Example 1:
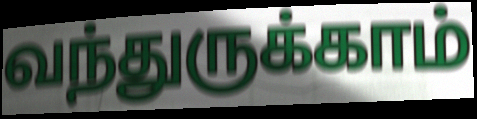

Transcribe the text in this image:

வந்துருக்காம்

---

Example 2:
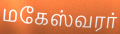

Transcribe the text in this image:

மகேஸ்வரர்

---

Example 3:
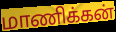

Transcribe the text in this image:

மாணிக்கன்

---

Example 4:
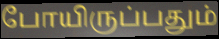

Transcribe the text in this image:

போயிருப்பதும்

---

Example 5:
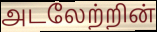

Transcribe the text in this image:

அடலேற்றின்